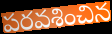
పరవశించిన